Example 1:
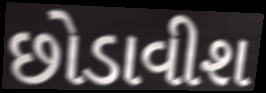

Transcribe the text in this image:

છોડાવીશ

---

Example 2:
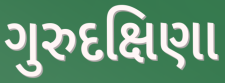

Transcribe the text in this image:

ગુરુદક્ષિણા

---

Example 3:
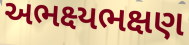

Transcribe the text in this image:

અભક્ષ્યભક્ષણ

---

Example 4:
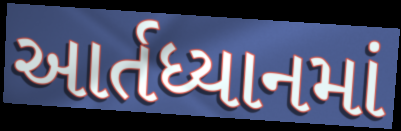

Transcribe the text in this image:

આર્તધ્યાનમાં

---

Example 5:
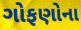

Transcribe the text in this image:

ગોફણોના